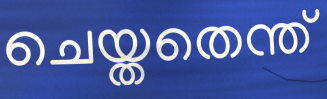
ചെയ്തതെന്ത്